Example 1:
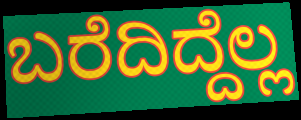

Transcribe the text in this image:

ಬರೆದಿದ್ದೆಲ್ಲ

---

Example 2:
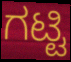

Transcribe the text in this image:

ಗಟ್ಟಿ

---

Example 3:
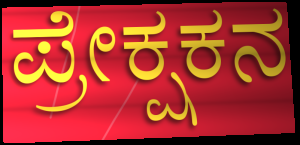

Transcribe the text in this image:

ಪ್ರೇಕ್ಷಕನ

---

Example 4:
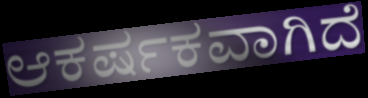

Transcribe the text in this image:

ಆಕರ್ಷಕವಾಗಿದೆ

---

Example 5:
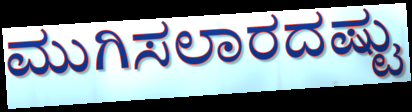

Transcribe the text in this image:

ಮುಗಿಸಲಾರದಷ್ಟು